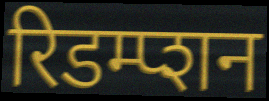
रिडम्प्शन